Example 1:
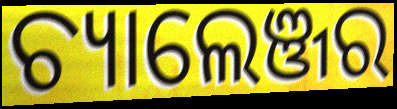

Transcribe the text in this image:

ଚ୍ୟାଲେଞ୍ଜର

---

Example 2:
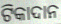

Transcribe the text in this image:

ଟିକାଦାନ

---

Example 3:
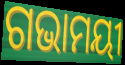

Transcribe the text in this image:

ଗଭାମୟୀ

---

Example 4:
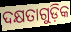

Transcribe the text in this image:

ଦକ୍ଷତାଗୁଡ଼ିକ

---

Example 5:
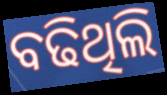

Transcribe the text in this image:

ବଢିଥିଲି